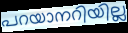
പറയാനറിയില്ല